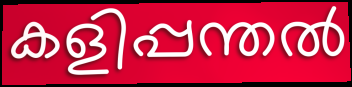
കളിപ്പന്തൽ